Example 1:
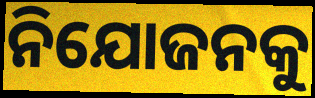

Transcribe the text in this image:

ନିଯୋଜନକୁ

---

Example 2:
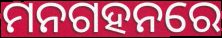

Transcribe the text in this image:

ମନଗହନରେ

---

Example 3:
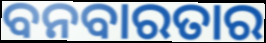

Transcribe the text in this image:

ବନବାରତାର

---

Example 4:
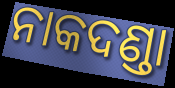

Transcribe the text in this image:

ନାକଦଣ୍ଡା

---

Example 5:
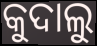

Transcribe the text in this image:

କୁଦାଲୁ